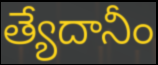
త్యేదానీం